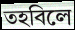
তহবিলে